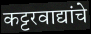
कट्टरवाद्यांचे